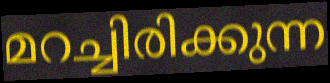
മറച്ചിരിക്കുന്ന